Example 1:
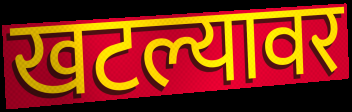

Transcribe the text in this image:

खटल्यावर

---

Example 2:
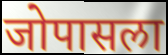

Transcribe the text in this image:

जोपासला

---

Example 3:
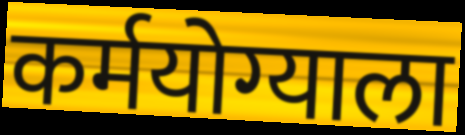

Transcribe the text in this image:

कर्मयोग्याला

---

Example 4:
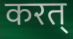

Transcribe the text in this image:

करत्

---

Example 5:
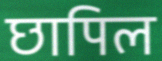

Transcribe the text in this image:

छापिल